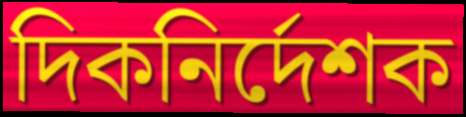
দিকনির্দেশক